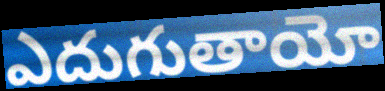
ఎదుగుతాయో